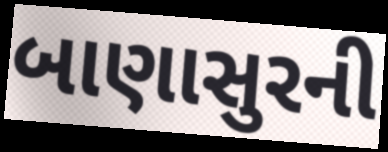
બાણાસુરની